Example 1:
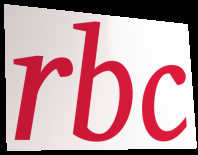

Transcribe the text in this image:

rbc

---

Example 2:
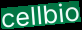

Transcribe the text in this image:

cellbio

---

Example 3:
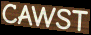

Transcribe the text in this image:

CAWST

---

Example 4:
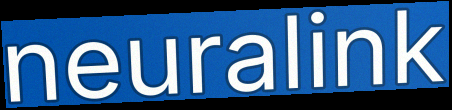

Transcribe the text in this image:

neuralink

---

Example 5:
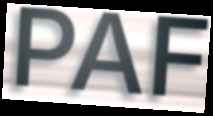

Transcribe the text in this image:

PAF